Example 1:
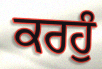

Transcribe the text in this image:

ਕਰਹੁੰ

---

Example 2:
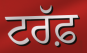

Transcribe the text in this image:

ਟਰੱਫ਼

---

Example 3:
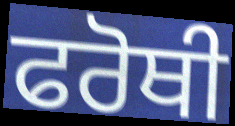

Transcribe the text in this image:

ਫਰੋਥੀ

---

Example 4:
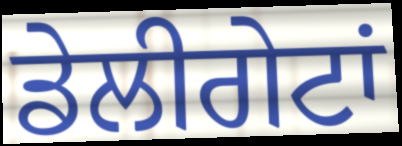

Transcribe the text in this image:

ਡੇਲੀਗੇਟਾਂ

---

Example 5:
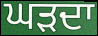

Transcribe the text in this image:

ਘੜਦਾ